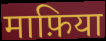
माफ़िया